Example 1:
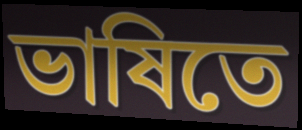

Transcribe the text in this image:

ভাষিতে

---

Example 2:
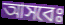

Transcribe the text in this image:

আসবেঃ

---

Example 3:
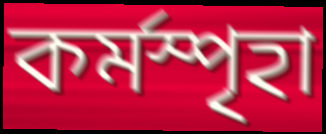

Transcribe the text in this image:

কর্মস্পৃহা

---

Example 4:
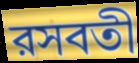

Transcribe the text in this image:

রসবতী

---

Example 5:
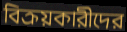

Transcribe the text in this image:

বিক্রয়কারীদের